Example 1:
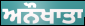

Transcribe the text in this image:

ਅਨੌਖਾਤਾ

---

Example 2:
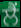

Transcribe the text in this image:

ਲੈਂ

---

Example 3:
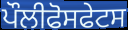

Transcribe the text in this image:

ਪੌਲੀਫੋਸਫੇਟਸ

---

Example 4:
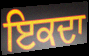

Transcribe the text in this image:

ਇਕਦਾ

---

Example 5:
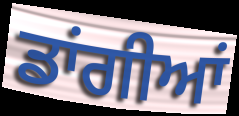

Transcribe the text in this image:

ਡਾਂਗੀਆਂ